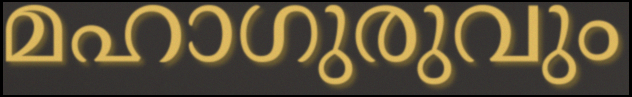
മഹാഗുരുവും